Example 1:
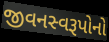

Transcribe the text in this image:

જીવનસ્વરૂપોનો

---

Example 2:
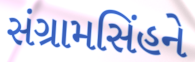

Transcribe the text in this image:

સંગ્રામસિંહને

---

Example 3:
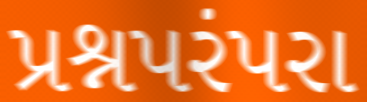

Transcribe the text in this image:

પ્રશ્નપરંપરા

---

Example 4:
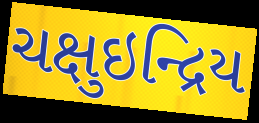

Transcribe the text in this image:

ચક્ષુઇન્દ્રિય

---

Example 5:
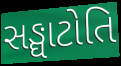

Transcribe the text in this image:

સઙ્ઘાટોતિ